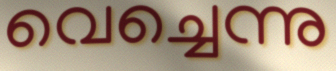
വെച്ചെന്നു